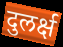
दुलर्क्ष